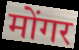
मोंगर